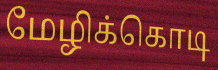
மேழிக்கொடி